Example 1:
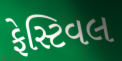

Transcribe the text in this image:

ફેસ્ટિવલ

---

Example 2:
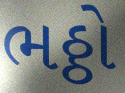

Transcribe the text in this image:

ભઠ્ઠો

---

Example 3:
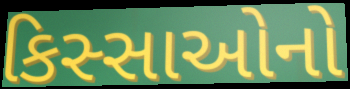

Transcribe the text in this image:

કિસ્સાઓનો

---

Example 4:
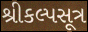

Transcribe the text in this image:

શ્રીકલ્પસૂત્ર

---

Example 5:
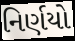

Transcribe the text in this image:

નિર્ણયો